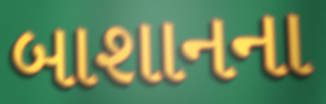
બાશાનના